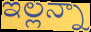
ఇల్లన్నా